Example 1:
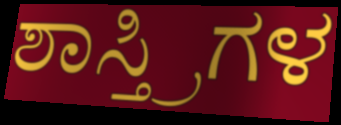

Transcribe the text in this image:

ಶಾಸ್ತ್ರಿಗಳ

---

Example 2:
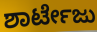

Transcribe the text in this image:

ಶಾರ್ಟೇಜು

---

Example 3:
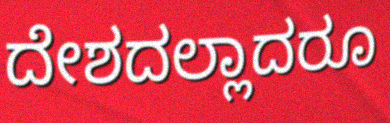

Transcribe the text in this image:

ದೇಶದಲ್ಲಾದರೂ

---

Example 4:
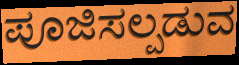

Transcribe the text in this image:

ಪೂಜಿಸಲ್ಪಡುವ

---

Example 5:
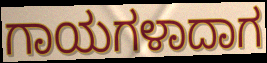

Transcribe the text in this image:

ಗಾಯಗಳಾದಾಗ